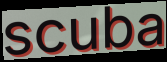
scuba